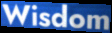
Wisdom